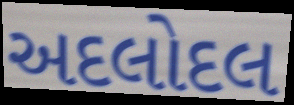
અદલોદલ